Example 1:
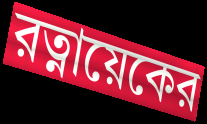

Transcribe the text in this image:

রত্নায়েকের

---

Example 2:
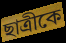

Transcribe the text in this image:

ছাত্রীকে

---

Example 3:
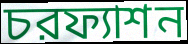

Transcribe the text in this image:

চরফ্যাশন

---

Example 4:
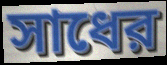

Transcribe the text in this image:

সাধের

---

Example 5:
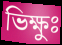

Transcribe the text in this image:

ভিক্ষুঃ